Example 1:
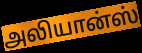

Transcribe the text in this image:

அலியான்ஸ்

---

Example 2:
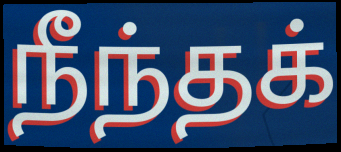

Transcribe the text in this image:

நீந்தக்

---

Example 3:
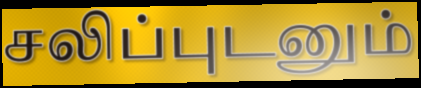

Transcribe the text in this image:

சலிப்புடனும்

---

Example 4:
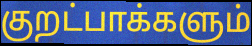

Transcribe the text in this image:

குறட்பாக்களும்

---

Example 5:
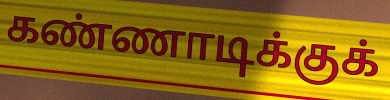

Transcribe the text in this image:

கண்ணாடிக்குக்